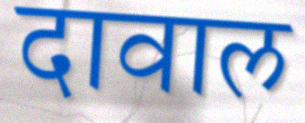
दावाल